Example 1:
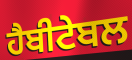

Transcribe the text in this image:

ਹੈਬੀਟੇਬਲ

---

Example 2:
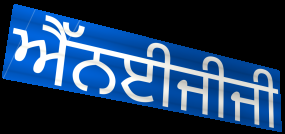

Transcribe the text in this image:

ਐੱਨਈਜੀਜੀ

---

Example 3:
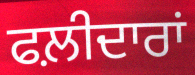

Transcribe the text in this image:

ਫਲ਼ੀਦਾਰਾਂ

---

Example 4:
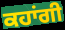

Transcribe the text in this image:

ਕਹਾਂਗੀ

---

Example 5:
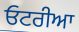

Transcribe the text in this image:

ਓਟਰੀਆ